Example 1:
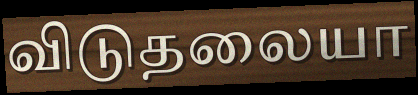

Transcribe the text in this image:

விடுதலையா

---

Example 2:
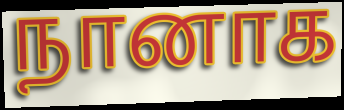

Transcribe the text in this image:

நானாக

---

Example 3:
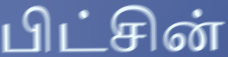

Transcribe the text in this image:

பிட்சின்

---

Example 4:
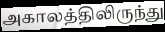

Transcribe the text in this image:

அகாலத்திலிருந்து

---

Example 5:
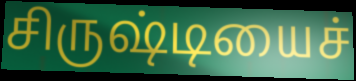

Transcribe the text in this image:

சிருஷ்டியைச்